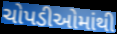
ચોપડીઓમાંથી